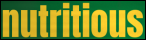
nutritious